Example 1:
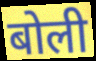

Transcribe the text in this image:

बोली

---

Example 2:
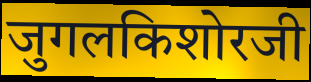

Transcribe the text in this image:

जुगलकिशोरजी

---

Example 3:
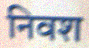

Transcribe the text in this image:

निवश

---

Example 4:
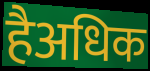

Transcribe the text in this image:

हैअधिक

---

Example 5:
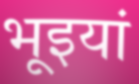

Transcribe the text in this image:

भूइयां